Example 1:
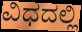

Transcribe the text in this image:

ವಿಧದಲ್ಲಿ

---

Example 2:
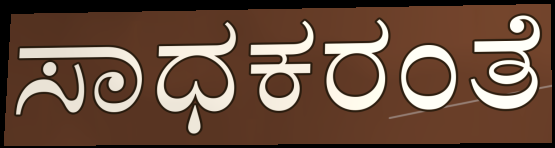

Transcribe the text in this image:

ಸಾಧಕರಂತೆ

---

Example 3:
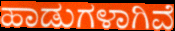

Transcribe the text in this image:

ಹಾಡುಗಳಾಗಿವೆ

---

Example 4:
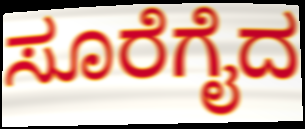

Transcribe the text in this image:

ಸೂರೆಗೈದ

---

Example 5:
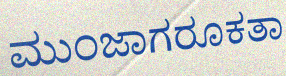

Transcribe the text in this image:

ಮುಂಜಾಗರೂಕತಾ